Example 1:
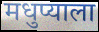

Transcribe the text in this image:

मधुप्याला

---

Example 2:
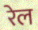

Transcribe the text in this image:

रेल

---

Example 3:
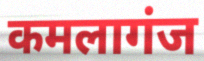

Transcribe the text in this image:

कमलागंज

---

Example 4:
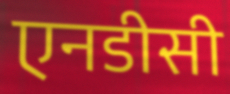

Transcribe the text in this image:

एनडीसी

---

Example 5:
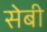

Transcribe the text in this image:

सेबी